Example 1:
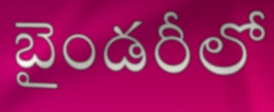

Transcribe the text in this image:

బైండరీలో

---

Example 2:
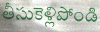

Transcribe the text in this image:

తీసుకెళ్లిపోండి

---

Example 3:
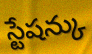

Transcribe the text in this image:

స్టేషన్కు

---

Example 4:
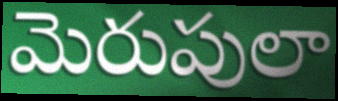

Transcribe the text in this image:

మెరుపులా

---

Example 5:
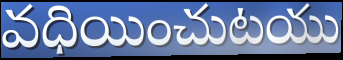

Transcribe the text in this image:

వధియించుటయు